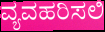
ವ್ಯವಹರಿಸಲಿ